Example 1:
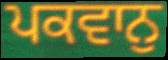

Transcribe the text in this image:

ਪਕਵਾਨੁ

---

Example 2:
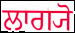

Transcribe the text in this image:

ਲਾਗ੍ਯੋ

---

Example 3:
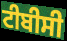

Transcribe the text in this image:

ਟੀਬੀਸੀ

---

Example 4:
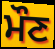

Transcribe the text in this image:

ਮੌਣ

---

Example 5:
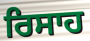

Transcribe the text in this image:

ਰਿਸਾਹ